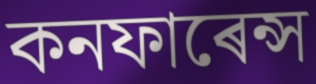
কনফাৰেন্স